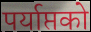
पर्याप्तको